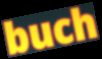
buch